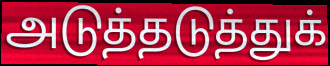
அடுத்தடுத்துக்